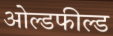
ओल्डफील्ड